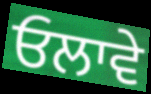
ਓਲਾਵੇ